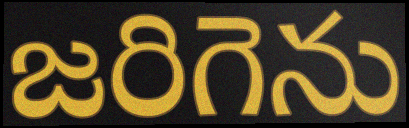
జరిగెను